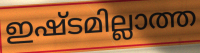
ഇഷ്ടമില്ലാത്ത